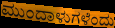
ಮುಂದಾಳುಗಳೆಂದು